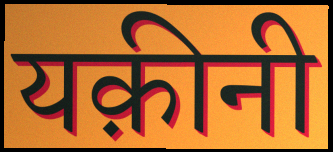
यक़ीनी